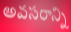
అవసరాన్ని